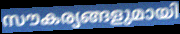
സൗകര്യങ്ങളുമായി